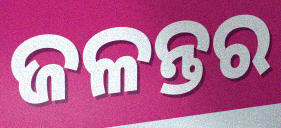
ଜଳନ୍ତର